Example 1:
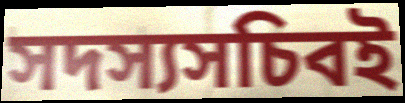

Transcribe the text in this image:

সদস্যসচিবই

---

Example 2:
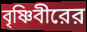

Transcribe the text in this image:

বৃষ্ণিবীরের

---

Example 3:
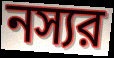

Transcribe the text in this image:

নস্যর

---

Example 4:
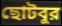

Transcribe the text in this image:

ছোটবুর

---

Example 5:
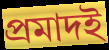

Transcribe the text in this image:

প্রমাদই